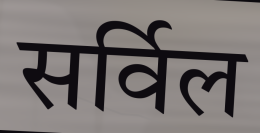
सर्विल